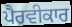
ਪੈਰਵੀਕਾਰ